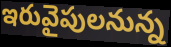
ఇరువైపులనున్న